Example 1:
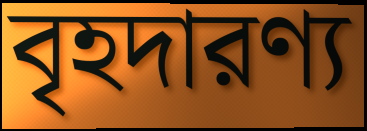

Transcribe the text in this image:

বৃহদারণ্য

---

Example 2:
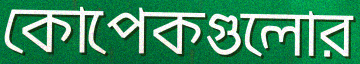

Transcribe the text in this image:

কোপেকগুলোর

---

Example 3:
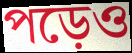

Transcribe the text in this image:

পড়েও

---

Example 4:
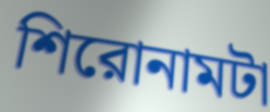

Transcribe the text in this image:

শিরোনামটা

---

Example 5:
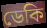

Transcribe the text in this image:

ডেকি